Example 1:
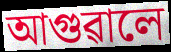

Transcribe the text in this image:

আগুৱালে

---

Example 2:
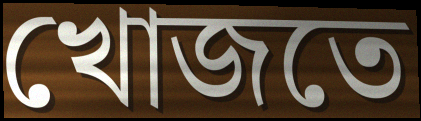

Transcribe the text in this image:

খোজতে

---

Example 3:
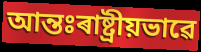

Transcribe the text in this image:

আন্তঃৰাষ্ট্ৰীয়ভাৱে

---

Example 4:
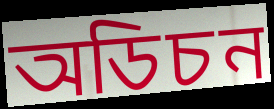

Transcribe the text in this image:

অডিচন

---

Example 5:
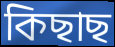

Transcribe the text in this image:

কিছাছ